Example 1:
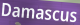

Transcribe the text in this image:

Damascus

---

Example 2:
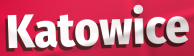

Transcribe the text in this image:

Katowice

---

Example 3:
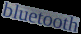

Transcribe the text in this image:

bluetooth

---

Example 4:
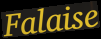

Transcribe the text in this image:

Falaise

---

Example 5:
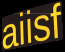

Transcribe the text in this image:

aiisf